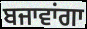
ਬਜਾਵਾਂਗਾ